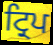
ਟ੍ਰਿਪ